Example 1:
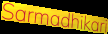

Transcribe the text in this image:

Sarmadhikari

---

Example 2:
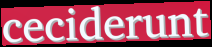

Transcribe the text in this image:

ceciderunt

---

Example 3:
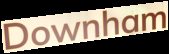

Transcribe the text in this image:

Downham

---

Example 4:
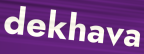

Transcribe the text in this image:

dekhava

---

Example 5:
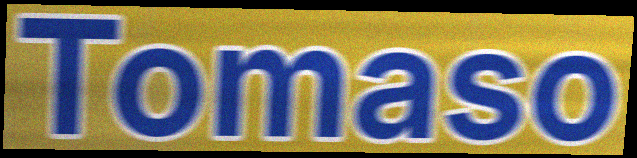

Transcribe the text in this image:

Tomaso